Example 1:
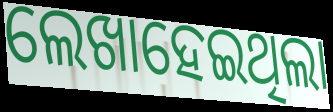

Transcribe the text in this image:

ଲେଖାହେଇଥିଲା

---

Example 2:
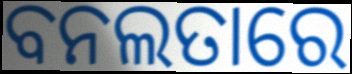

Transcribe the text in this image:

ବନଲତାରେ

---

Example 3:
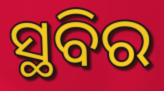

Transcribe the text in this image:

ସ୍ଥବିର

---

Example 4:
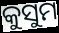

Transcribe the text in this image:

କୁସୁମ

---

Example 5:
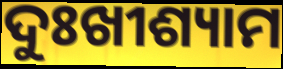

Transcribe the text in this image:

ଦୁଃଖୀଶ୍ୟାମ